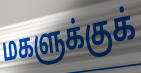
மகளுக்குக்